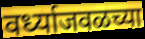
वर्ध्याजवळच्या